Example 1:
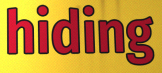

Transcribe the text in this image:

hiding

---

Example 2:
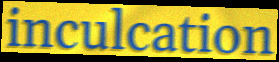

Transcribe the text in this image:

inculcation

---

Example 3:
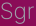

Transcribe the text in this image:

Sgr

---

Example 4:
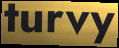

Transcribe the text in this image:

turvy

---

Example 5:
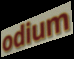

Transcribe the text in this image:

odium